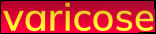
varicose